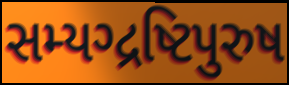
સમ્યગ્દ્રષ્ટિપુરુષ